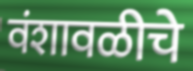
वंशावळीचे